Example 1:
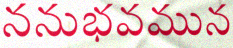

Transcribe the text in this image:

ననుభవమున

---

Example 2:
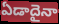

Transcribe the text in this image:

ఏడాదైనా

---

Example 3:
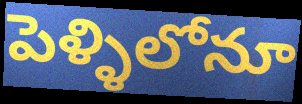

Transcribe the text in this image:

పెళ్ళిలోనూ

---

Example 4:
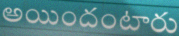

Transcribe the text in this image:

అయిందంటారు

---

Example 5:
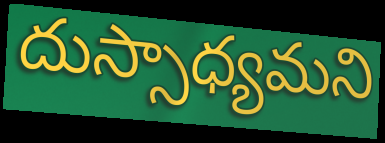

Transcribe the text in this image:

దుస్సాధ్యమని